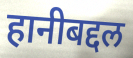
हानीबद्दल